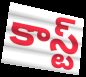
కాస్ట్